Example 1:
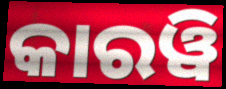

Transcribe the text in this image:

କାରୱି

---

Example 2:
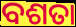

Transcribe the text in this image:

ବଶତା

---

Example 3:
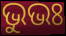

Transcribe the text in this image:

ଭୁଭଃ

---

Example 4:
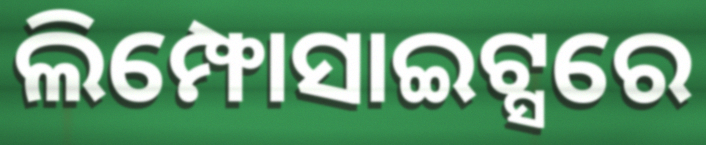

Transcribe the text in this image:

ଲିମ୍ଫୋସାଇଟ୍ସରେ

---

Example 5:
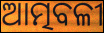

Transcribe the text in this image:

ଆତ୍ମବଳୀ